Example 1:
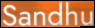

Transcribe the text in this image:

Sandhu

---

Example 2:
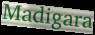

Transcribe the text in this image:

Madigara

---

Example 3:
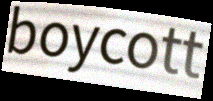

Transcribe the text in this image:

boycott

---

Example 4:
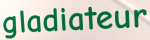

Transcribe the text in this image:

gladiateur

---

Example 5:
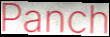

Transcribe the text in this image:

Panch